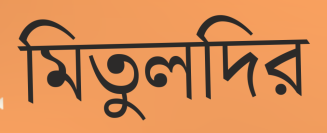
মিতুলদির